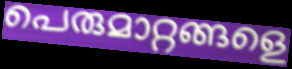
പെരുമാറ്റങ്ങളെ